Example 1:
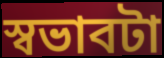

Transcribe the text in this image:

স্বভাবটা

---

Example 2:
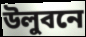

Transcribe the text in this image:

উলুবনে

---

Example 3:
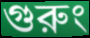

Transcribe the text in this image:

গুরুং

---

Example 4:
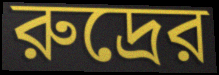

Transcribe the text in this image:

রুদ্রের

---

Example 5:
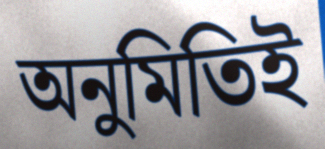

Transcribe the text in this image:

অনুমিতিই